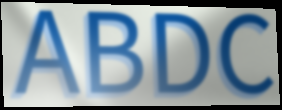
ABDC